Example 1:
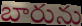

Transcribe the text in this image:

బారును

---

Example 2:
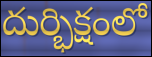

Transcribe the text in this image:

దుర్భిక్షంలో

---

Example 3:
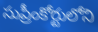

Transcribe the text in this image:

సుప్రీంకోర్టులోని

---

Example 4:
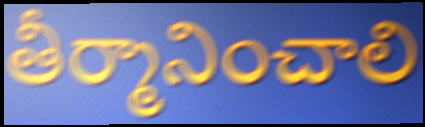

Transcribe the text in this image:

తీర్మానించాలి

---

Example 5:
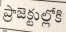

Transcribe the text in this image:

ప్రాజెక్టుల్లోకి